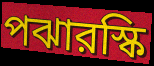
পঝারস্কি